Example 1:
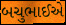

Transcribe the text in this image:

બચુભાઈએ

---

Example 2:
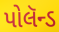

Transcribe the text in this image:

પોલૅન્ડ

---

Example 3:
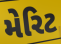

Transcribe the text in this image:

મેરિટ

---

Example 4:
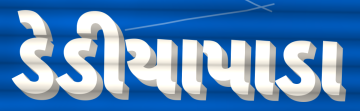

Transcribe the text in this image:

ડેડીયાપાડા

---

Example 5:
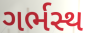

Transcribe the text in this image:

ગર્ભસ્થ